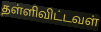
தள்ளிவிட்டவள்